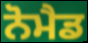
ਨੋਮੈਡ